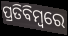
ପ୍ରତିବିମ୍ବରେ